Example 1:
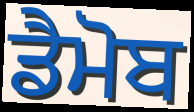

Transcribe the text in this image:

ਡੈਮੋਬ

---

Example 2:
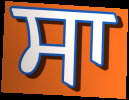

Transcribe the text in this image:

ਸਾ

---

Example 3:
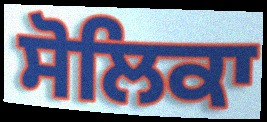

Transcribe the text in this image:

ਸੋਲਿਕਾ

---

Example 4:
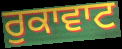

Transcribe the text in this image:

ਰੁਕਾਵਾਟ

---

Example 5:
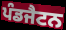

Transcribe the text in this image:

ਪੰਡਜੈਟਨ